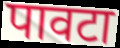
पावटा